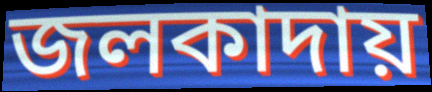
জলকাদায়